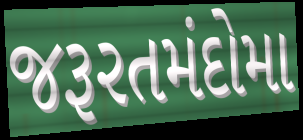
જરૂરતમંદોમા